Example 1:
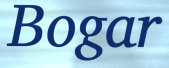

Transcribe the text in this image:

Bogar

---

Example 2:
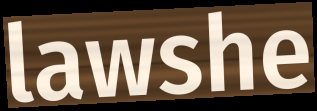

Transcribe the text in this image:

lawshe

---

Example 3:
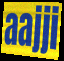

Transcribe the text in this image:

aajji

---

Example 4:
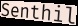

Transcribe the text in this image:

Senthil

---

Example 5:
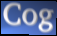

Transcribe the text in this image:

Cog